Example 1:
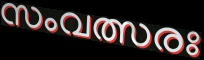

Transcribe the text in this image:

സംവത്സരഃ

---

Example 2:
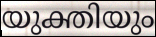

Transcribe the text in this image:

യുക്തിയും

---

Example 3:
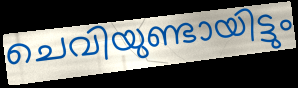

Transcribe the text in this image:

ചെവിയുണ്ടായിട്ടും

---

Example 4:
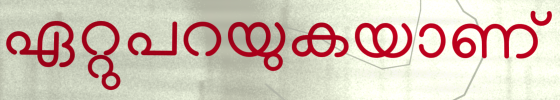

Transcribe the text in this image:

ഏറ്റുപറയുകയാണ്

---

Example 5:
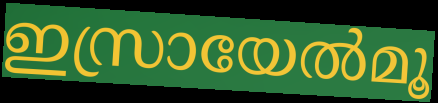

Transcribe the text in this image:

ഇസ്രായേൽമൂ